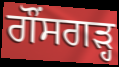
ਗੌਂਸਗੜ੍ਹ